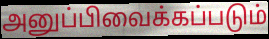
அனுப்பிவைக்கப்படும்